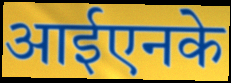
आईएनके